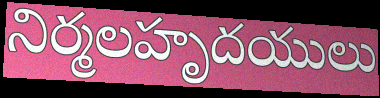
నిర్మలహృదయులు